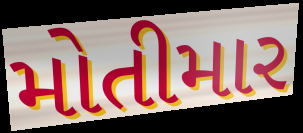
મોતીમાર